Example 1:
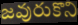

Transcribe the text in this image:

జవురుకొని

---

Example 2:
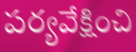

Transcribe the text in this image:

పర్యవేక్షించి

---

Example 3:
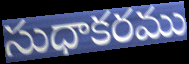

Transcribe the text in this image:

సుధాకరము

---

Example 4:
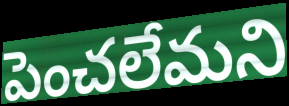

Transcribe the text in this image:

పెంచలేమని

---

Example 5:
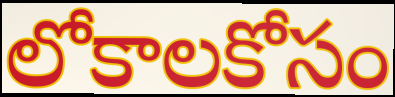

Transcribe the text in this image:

లోకాలకోసం